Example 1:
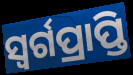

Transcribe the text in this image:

ସ୍ୱର୍ଗପ୍ରାପ୍ତି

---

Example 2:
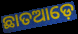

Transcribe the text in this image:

ଛାତଆଡ଼େ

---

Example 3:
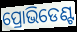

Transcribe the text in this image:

ପ୍ରୋଭିଡେଣ୍ଟ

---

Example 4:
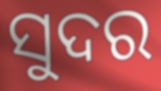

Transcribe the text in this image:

ସୁଦର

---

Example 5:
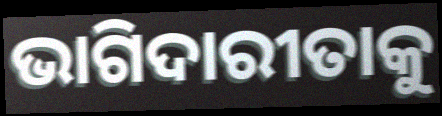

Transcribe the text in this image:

ଭାଗିଦାରୀତାକୁ